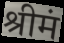
श्रीमं